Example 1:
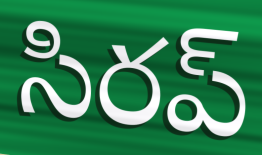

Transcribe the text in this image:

సిరప్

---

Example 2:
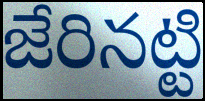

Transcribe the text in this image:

జేరినట్టి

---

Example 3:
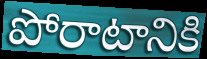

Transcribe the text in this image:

పోరాటానికి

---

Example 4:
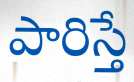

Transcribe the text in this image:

పారిస్తే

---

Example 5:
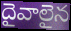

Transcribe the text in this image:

దైవాలైన